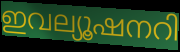
ഇവല്യൂഷനറി